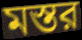
মস্তর